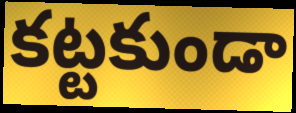
కట్టకుండా